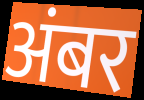
अंबर